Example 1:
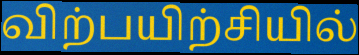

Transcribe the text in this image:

விற்பயிற்சியில்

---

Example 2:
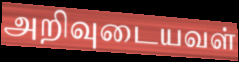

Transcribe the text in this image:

அறிவுடையவள்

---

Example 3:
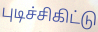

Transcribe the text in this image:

புடிச்சிகிட்டு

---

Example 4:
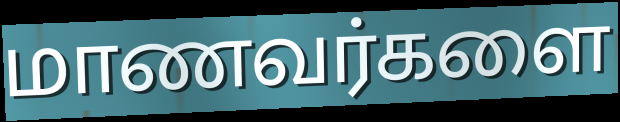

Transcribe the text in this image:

மாணவர்களை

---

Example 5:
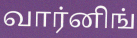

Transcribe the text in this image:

வார்னிங்